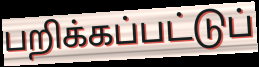
பறிக்கப்பட்டுப்